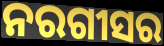
ନରଗୀସର